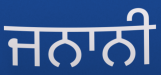
ਜਨਾਨੀ